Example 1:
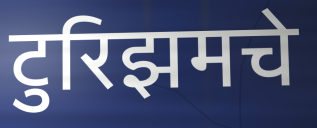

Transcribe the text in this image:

टुरिझमचे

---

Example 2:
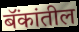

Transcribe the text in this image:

बॅंकांतील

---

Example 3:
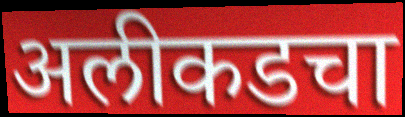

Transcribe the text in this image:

अलीकडचा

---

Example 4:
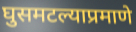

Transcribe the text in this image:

घुसमटल्याप्रमाणे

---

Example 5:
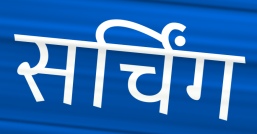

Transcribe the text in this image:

सर्चिंग